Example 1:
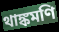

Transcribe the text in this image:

থাঙ্কমণি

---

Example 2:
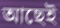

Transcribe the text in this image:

আছেই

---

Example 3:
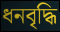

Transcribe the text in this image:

ধনবৃদ্ধি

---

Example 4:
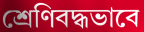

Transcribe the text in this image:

শ্রেণিবদ্ধভাবে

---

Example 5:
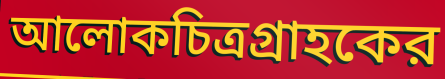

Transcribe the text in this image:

আলোকচিত্রগ্রাহকের